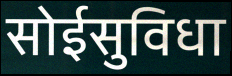
सोईसुविधा